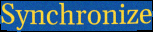
Synchronize